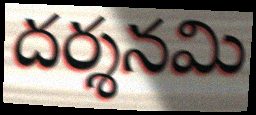
దర్శనమి